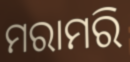
ମରାମରି